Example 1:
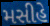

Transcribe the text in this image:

મસીહે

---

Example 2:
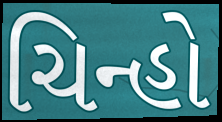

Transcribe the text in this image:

ચિન્હો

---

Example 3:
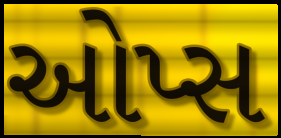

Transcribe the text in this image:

ઓપ્સ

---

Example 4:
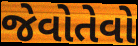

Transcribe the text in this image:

જેવોતેવો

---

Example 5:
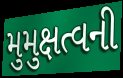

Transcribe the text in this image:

મુમુક્ષત્વની